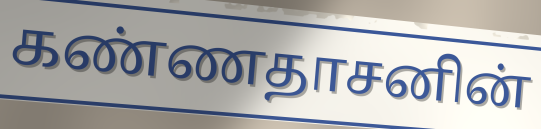
கண்ணதாசனின்